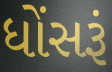
ધોંસરૂં